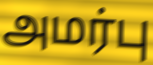
அமர்பு